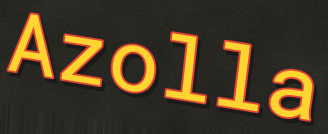
Azolla